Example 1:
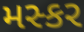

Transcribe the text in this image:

મસ્કર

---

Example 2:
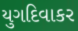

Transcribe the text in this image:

યુગદિવાકર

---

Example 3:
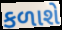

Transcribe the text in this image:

કળાશે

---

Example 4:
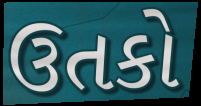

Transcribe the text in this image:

ઉતકો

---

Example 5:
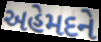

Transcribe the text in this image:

અહેમદને